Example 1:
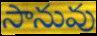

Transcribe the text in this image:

సానువు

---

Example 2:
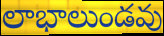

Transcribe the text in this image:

లాభాలుండవు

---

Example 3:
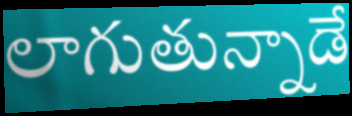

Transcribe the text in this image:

లాగుతున్నాడే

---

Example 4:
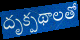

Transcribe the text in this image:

దృక్పథాలతో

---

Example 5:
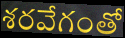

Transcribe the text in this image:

శరవేగంతో